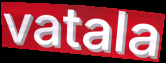
vatala